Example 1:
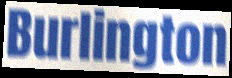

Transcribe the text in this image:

Burlington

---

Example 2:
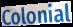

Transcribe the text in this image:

Colonial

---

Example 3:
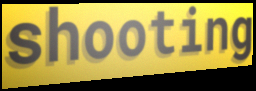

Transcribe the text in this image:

shooting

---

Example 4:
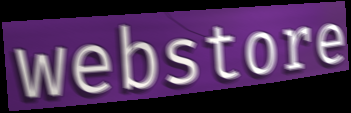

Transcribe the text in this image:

webstore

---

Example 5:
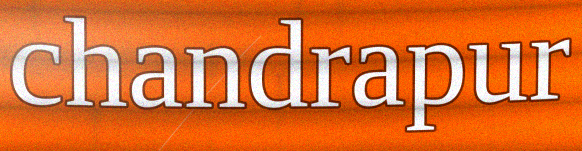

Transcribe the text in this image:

chandrapur